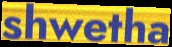
shwetha